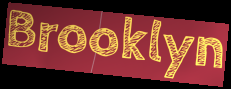
Brooklyn